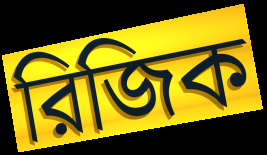
রিজিক